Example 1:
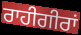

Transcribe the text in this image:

ਰਾਹੀਗੀਰਾਂ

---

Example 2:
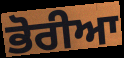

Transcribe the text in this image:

ਭੋਰੀਆ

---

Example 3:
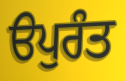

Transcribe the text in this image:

ੳਪੁਰੰਤ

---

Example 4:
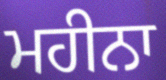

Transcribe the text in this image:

ਮਹੀਨਾ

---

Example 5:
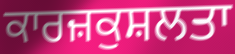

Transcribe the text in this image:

ਕਾਰਜ਼ਕੁਸ਼ਲਤਾ